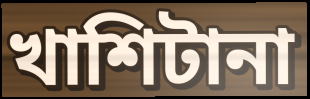
খাশিটানা